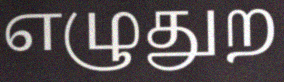
எழுதுற